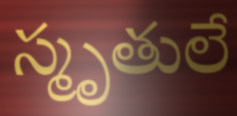
స్మృతులే